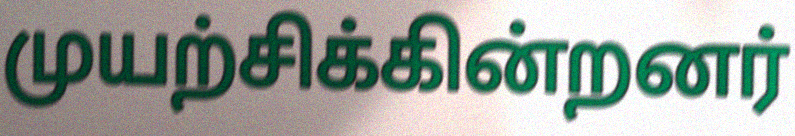
முயற்சிக்கின்றனர்